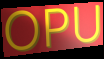
OPU